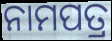
ନାମପତ୍ର